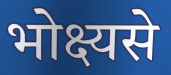
भोक्ष्यसे